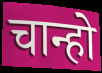
चान्हो